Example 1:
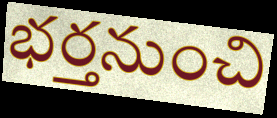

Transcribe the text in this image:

భర్తనుంచి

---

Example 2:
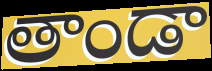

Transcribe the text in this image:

తాండా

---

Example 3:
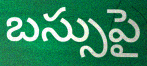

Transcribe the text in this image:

బస్సుపై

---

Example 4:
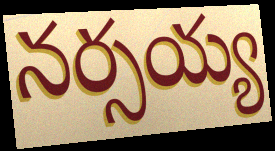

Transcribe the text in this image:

నర్సయ్య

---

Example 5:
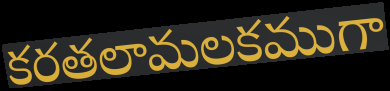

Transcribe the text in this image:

కరతలామలకముగా